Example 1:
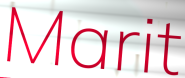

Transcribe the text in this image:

Marit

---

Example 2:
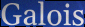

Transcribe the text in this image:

Galois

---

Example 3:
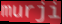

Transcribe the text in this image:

murji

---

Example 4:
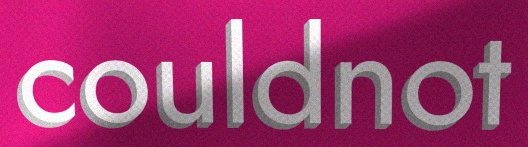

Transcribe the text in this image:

couldnot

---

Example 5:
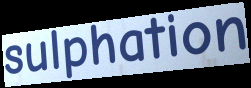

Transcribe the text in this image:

sulphation